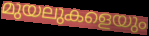
മുയലുകളെയും